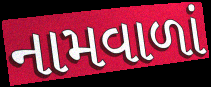
નામવાળાં